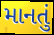
માનતું